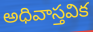
అధివాస్తవిక